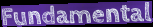
Fundamental